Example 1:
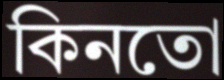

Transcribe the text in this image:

কিনতো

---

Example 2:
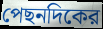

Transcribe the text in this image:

পেছনদিকের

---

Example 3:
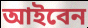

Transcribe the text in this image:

আইবেন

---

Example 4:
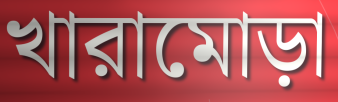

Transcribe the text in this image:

খারামোড়া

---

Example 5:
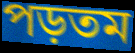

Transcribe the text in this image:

পড়তম